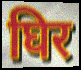
घिर